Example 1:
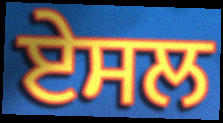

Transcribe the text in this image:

ਏਸਲ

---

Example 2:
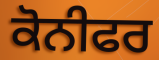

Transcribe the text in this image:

ਕੋਨੀਫਰ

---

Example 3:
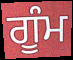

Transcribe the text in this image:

ਗੂੰਮ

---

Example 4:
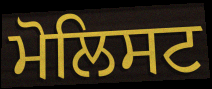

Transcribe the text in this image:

ਮੋਲਿਸਟ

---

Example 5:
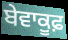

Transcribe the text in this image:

ਬੇਵਾਕੂਫ਼